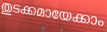
തുടക്കമായേക്കാം